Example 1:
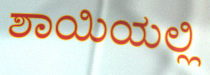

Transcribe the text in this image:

ಶಾಯಿಯಲ್ಲಿ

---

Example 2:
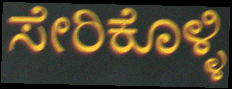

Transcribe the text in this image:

ಸೇರಿಕೊಳ್ಳಿ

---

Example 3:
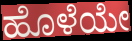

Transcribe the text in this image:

ಹೊಳೆಯೇ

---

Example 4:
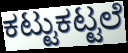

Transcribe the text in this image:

ಕಟ್ಟುಕಟ್ಟಲೆ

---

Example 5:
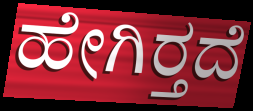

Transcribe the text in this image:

ಹೇಗಿರ್‍ತದೆ